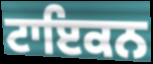
ਟਾਇਕਨ